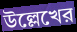
উল্লেখের